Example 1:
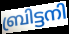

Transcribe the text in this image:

ബ്രിട്ടനി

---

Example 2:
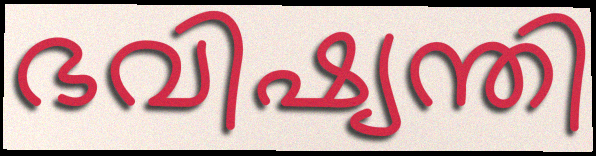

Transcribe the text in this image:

ഭവിഷ്യന്തി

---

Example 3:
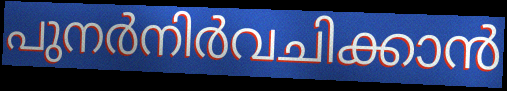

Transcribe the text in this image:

പുനർനിർവചിക്കാൻ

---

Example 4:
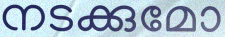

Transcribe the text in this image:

നടക്കുമോ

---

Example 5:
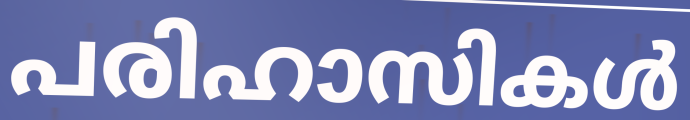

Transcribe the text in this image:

പരിഹാസികൾ